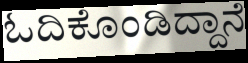
ಓದಿಕೊಂಡಿದ್ದಾನೆ